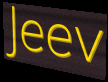
Jeev